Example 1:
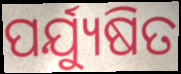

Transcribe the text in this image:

ପର୍ଯ୍ୟୁଷିତ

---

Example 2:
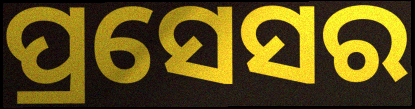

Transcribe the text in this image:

ପ୍ରସେସର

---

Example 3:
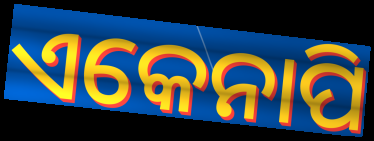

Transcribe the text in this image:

ଏକେନାପି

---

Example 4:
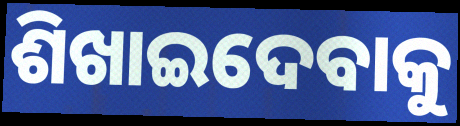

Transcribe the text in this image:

ଶିଖାଇଦେବାକୁ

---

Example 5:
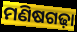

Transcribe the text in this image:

ମଣିଷଗଢ଼ା